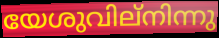
യേശുവില്നിന്നു